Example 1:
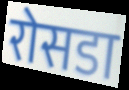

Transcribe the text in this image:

रोसडा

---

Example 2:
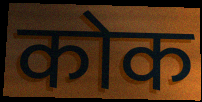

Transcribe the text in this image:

कोक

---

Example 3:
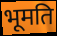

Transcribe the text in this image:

भूमति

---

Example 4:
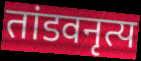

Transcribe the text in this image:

तांडवनृत्य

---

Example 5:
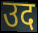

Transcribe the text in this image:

उद